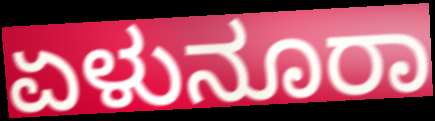
ಏಳುನೂರಾ